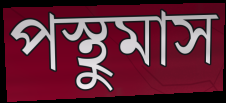
পস্থুমাস